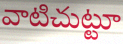
వాటిచుట్టూ